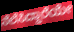
ನೆಲೆಸಿದ್ದಾರೆಯೇ